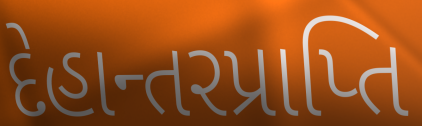
દેહાન્તરપ્રાપ્તિ